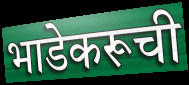
भाडेकरूची